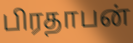
பிரதாபன்